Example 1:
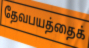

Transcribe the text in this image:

தேவபயத்தைக்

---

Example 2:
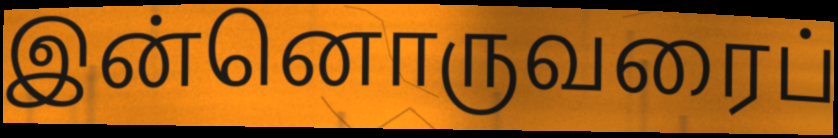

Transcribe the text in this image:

இன்னொருவரைப்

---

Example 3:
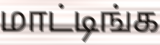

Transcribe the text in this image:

மாட்டிங்க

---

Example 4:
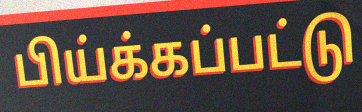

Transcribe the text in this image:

பிய்க்கப்பட்டு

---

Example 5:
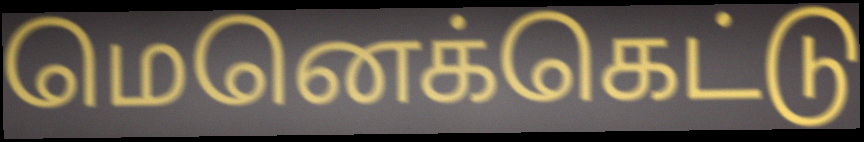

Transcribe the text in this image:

மெனெக்கெட்டு